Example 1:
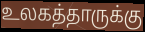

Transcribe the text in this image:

உலகத்தாருக்கு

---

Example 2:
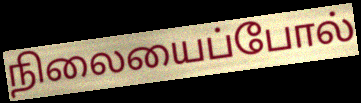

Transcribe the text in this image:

நிலையைப்போல்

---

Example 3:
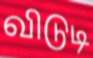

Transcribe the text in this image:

விடுடி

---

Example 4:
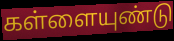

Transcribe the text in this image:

கள்ளையுண்டு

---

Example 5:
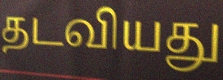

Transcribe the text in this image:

தடவியது